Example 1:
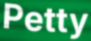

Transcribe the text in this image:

Petty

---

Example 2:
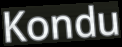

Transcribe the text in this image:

Kondu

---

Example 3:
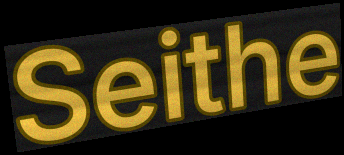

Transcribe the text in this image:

Seithe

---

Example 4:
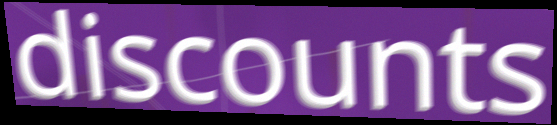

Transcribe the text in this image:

discounts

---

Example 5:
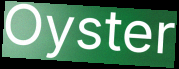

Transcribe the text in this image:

Oyster